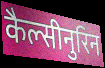
कैल्सीनुरिन